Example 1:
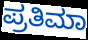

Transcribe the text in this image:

ಪ್ರತಿಮಾ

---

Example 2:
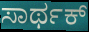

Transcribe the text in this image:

ಸಾರ್ಥಕ್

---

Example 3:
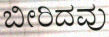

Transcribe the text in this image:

ಬೀರಿದವು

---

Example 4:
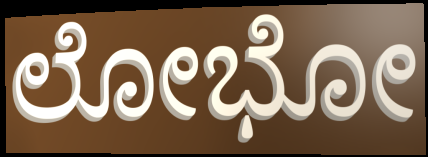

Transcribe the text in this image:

ಲೋಭೋ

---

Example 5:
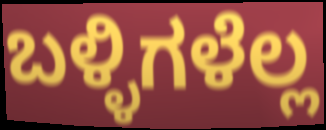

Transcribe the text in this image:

ಬಳ್ಳಿಗಳೆಲ್ಲ